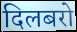
दिलबरो